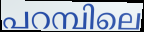
പറമ്പിലെ